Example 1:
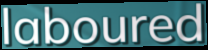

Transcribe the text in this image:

laboured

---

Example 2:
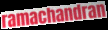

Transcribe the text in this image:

ramachandran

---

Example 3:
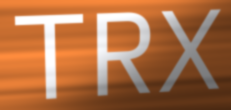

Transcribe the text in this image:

TRX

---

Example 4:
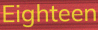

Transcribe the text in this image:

Eighteen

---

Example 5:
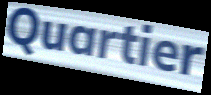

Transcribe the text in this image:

Quartier